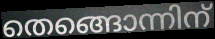
തെങ്ങൊന്നിന്